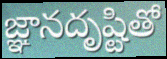
జ్ఞానదృష్టితో